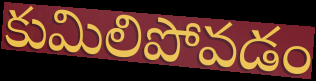
కుమిలిపోవడం